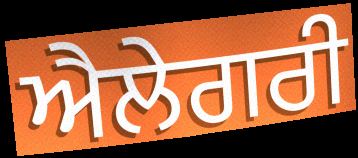
ਐਲੇਗਰੀ